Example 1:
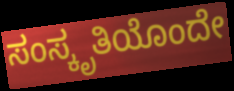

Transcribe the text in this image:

ಸಂಸ್ಕೃತಿಯೊಂದೇ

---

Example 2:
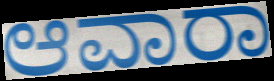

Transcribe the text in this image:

ಆವಾರಾ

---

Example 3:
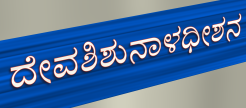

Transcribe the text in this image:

ದೇವಶಿಶುನಾಳಧೀಶನ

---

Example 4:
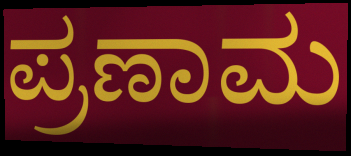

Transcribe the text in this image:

ಪ್ರಣಾಮ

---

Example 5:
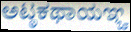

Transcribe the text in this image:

ಅಟ್ಠಕಥಾಯಞ್ಚ